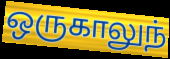
ஒருகாலுந்